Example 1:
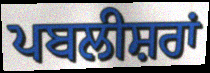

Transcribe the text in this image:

ਪਬਲੀਸ਼ਰਾਂ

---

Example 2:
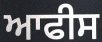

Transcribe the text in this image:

ਆਫੀਸ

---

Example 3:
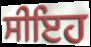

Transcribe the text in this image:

ਸੀਇਹ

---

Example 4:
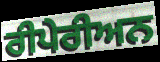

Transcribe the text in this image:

ਰੀਪੇਰੀਅਨ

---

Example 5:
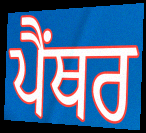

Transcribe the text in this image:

ਪੈੰਥਰ